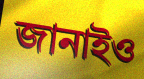
জানাইও